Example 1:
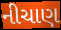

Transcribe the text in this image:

નીચાણ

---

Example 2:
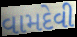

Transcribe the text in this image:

વામદેવી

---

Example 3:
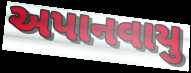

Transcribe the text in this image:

અપાનવાયુ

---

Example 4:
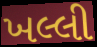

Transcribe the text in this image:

ખલ્લી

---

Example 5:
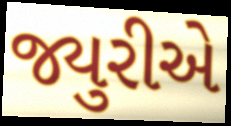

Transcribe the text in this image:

જ્યુરીએ